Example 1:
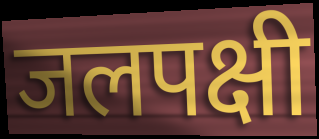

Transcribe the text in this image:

जलपक्षी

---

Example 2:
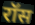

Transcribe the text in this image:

रॉस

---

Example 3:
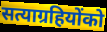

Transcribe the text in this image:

सत्याग्रहियोंको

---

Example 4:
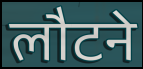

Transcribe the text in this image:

लौटने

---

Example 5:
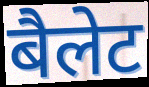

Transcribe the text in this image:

बैलेट